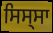
ਸਿਸ੍ਸਾ